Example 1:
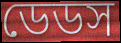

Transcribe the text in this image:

ডেডস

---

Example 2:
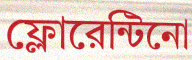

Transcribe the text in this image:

ফ্লোরেন্টিনো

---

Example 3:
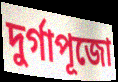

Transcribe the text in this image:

দুর্গাপূজো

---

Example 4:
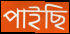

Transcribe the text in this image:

পাইছি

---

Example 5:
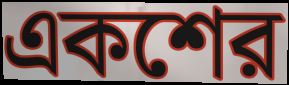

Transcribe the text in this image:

একশের